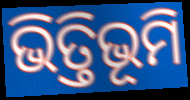
ଭିତ୍ତିଭୂମି